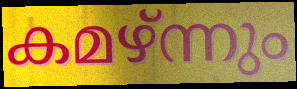
കമഴ്ന്നും